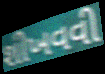
શીખવવી